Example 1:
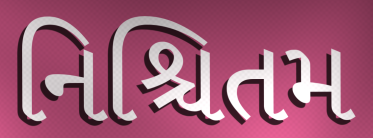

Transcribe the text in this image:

નિશ્ચિતમ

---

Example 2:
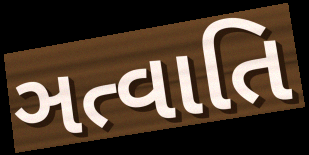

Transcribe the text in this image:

ઞત્વાતિ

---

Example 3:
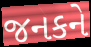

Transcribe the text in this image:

જનકને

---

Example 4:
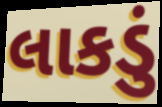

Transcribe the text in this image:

લાકડું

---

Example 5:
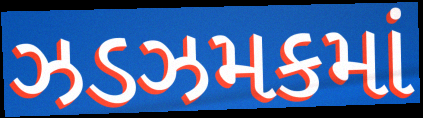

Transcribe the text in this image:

ઝડઝમકમાં